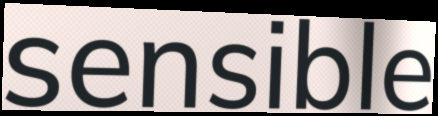
sensible